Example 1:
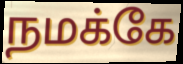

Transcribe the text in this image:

நமக்கே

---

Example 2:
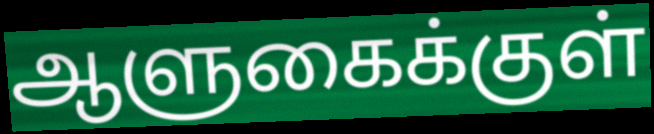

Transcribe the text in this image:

ஆளுகைக்குள்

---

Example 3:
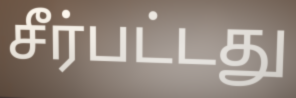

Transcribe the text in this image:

சீர்பட்டது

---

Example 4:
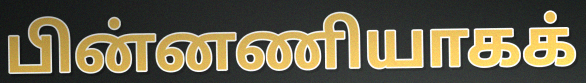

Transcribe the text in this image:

பின்னணியாகக்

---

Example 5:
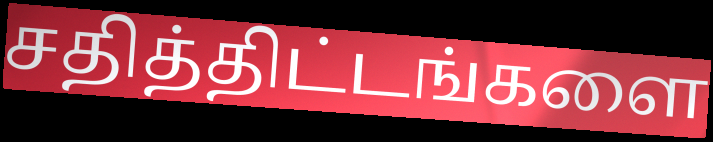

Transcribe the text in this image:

சதித்திட்டங்களை